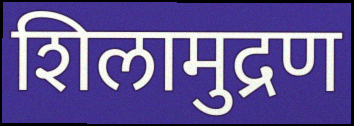
शिलामुद्रण